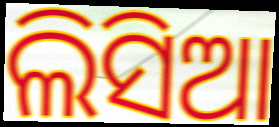
ଲିସିଆ